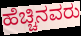
ಹೆಚ್ಚಿನವರು